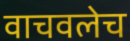
वाचवलेच